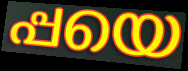
പ്പയെ